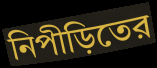
নিপীড়িতের